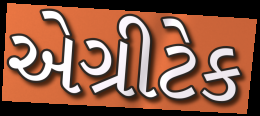
એગ્રીટેક